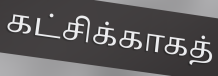
கட்சிக்காகத்